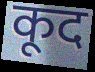
कूद